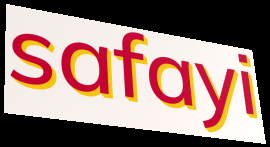
safayi